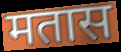
मतास